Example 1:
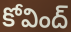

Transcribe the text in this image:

కోవింద్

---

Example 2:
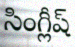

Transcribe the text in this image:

సింగ్లీష్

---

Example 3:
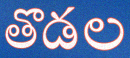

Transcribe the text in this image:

తొడల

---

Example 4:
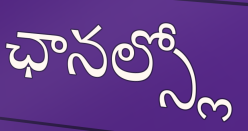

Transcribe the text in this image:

ఛానల్స్లో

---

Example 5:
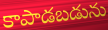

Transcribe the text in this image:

కాపాడబడును